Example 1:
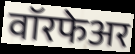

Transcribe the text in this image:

वॉरफेअर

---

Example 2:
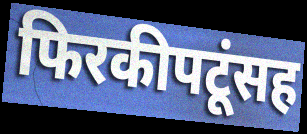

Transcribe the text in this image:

फिरकीपटूंसह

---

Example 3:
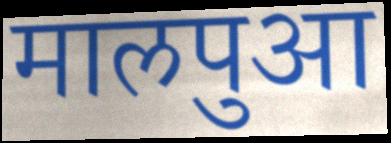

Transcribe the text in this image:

मालपुआ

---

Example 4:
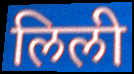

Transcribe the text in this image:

लिली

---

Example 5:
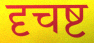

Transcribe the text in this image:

दृचष्ट